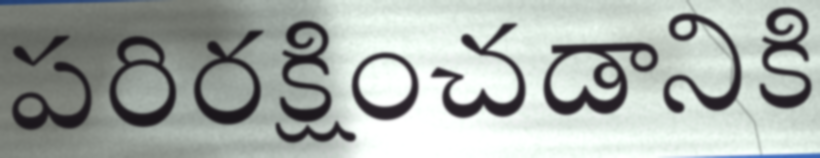
పరిరక్షించడానికి